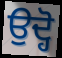
ਉਦ੍ਹੋ